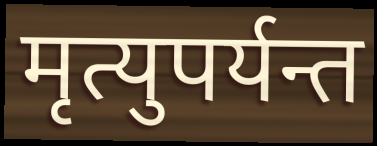
मृत्युपर्यन्त